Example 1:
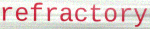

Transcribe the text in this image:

refractory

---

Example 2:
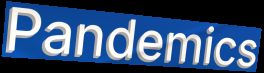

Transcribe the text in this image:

Pandemics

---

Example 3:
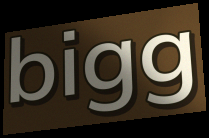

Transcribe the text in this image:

bigg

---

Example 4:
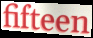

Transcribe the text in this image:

fifteen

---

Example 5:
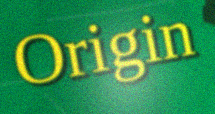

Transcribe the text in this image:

Origin